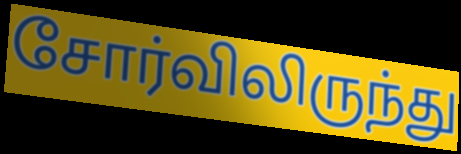
சோர்விலிருந்து